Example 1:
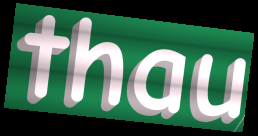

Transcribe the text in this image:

thau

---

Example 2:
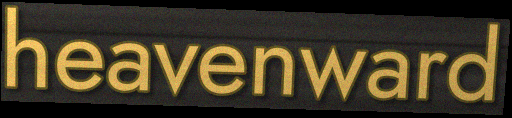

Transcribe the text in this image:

heavenward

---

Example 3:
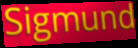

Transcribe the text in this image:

Sigmund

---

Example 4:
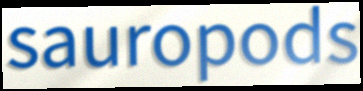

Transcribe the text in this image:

sauropods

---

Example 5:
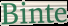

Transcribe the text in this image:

Binte